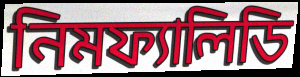
নিমফ্যালিডি